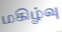
மகிழ்வு